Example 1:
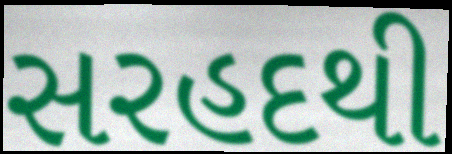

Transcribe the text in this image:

સરહદથી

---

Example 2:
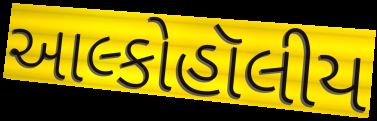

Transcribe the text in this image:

આલ્કોહૉલીય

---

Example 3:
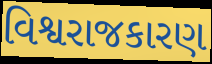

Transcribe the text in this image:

વિશ્વરાજકારણ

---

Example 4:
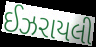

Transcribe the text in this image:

ઈઝરાયલી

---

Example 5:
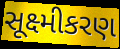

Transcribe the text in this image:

સૂક્ષ્મીકરણ